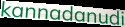
kannadanudi